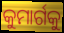
କୁମାର୍ଗକୁ